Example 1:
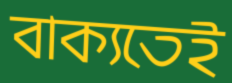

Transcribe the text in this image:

বাক্যতেই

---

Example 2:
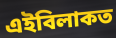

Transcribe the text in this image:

এইবিলাকত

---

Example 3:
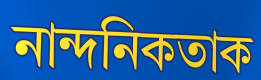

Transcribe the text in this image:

নান্দনিকতাক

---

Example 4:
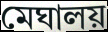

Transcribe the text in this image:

মেঘালয়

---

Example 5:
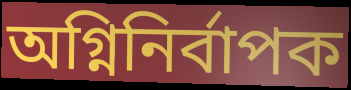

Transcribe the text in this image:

অগ্নিনিৰ্বাপক